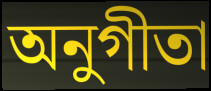
অনুগীতা